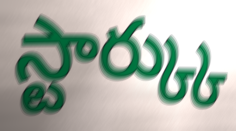
స్టార్క్కు